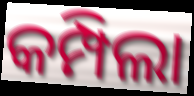
କମ୍ପିଲା